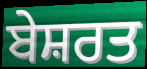
ਬੇਸ਼ਰਤ